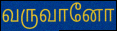
வருவானோ